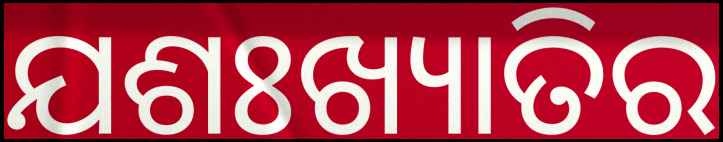
ଯଶଃଖ୍ୟାତିର